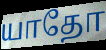
யாதோ